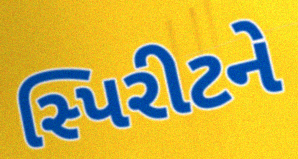
સ્પિરીટને